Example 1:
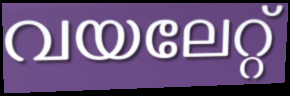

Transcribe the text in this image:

വയലേറ്റ്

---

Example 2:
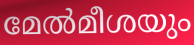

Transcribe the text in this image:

മേൽമീശയും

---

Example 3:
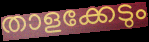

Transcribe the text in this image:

താളക്കേടും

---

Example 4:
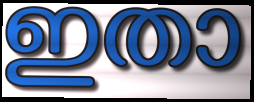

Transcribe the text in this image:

ഇതാ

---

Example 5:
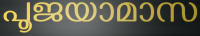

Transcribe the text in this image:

പൂജയാമാസ